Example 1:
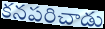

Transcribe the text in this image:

కనపరిచాడు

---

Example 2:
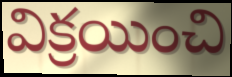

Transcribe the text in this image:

విక్రయించి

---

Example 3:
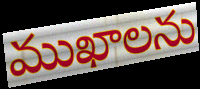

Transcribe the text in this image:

ముఖాలను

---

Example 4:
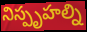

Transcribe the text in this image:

నిస్పృహల్ని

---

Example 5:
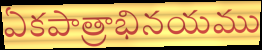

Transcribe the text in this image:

ఏకపాత్రాభినయము